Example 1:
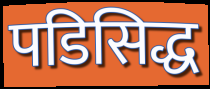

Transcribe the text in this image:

पडिसिद्ध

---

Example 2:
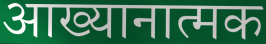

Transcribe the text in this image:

आख्यानात्मक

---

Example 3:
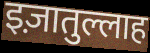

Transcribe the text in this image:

इज़ातुल्लाह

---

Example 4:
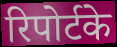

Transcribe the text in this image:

रिपोर्टके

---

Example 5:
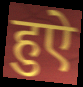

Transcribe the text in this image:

हुऐ